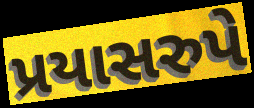
પ્રયાસરુપે